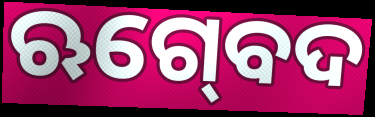
ଋଗ୍‍ବେଦ